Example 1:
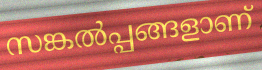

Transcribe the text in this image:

സങ്കൽപ്പങ്ങളാണ്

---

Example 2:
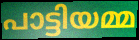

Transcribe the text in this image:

പാട്ടിയമ്മ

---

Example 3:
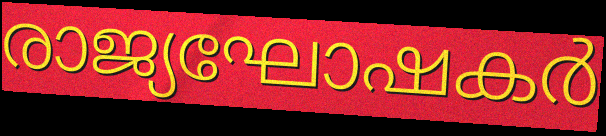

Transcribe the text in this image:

രാജ്യഘോഷകർ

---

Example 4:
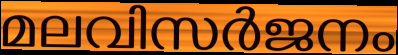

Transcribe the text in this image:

മലവിസർജനം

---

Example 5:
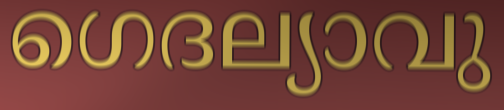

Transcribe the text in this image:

ഗെദല്യാവു